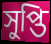
সুপ্তি